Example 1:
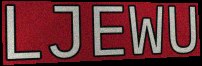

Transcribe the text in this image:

LJEWU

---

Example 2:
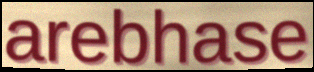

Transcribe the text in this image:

arebhase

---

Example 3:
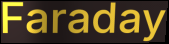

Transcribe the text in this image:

Faraday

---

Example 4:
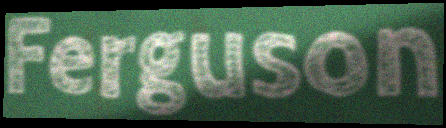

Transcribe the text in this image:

Ferguson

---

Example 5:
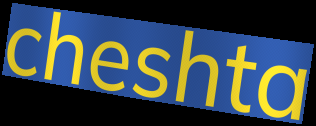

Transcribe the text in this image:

cheshta